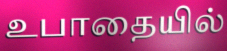
உபாதையில்